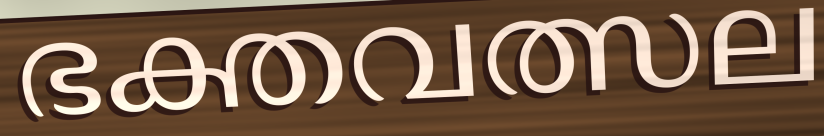
ഭക്തവത്സല